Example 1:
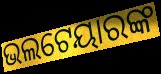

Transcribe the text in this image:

ଭଲଟେୟାରଙ୍କ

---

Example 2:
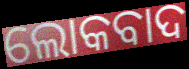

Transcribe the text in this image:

ଲୋକବାଦ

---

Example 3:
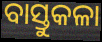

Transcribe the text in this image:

ବାସ୍ତୁକଳା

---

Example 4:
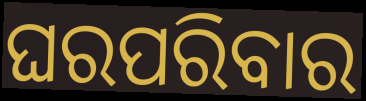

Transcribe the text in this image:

ଘରପରିବାର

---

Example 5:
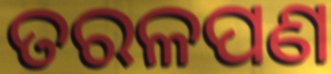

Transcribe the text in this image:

ତରଳପଣ